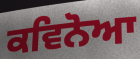
ਕਵਿਨੋਆ